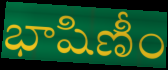
భాషిణీం